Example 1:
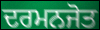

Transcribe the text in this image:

ਦਰਮਨਜੋਤ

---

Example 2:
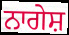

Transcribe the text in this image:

ਨਾਗੇਸ਼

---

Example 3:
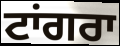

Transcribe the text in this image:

ਟਾਂਗਰਾ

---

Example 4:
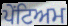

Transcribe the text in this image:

ਪੇਂਟਿਅਮ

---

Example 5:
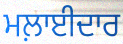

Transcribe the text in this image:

ਮਲ਼ਾਈਦਾਰ